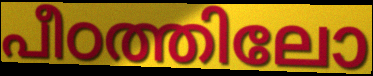
പീഠത്തിലോ